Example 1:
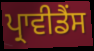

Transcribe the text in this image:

ਪ੍ਰਾਵੀਡੈਂਸ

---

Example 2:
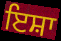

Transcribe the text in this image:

ਇਸ਼ਾ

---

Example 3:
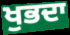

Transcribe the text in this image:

ਖੁਭਦਾ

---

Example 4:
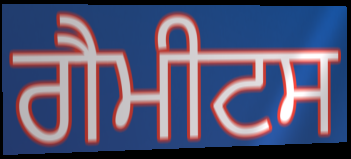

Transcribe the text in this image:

ਗੈਮੀਟਸ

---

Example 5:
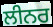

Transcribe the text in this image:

ਲੀਨਰ